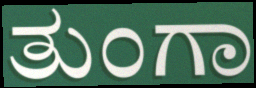
ತುಂಗಾ